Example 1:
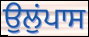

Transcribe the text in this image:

ਉਲੁਂਪਾਸ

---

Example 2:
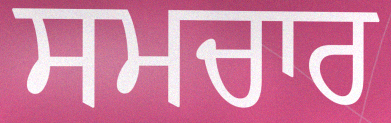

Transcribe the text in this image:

ਸਮਚਾਰ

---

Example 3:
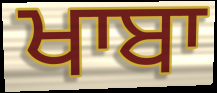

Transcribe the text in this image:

ਖਾਬਾ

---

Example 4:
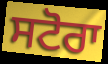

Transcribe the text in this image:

ਸਟੋਰਾ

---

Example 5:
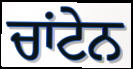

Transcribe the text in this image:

ਚਾਂਟੇਨ